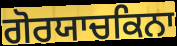
ਗੋਰਯਾਚਕਿਨਾ